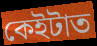
কেইটাত